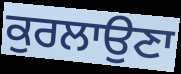
ਕੁਰਲਾਉਣਾ